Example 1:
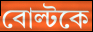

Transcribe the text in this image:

বোল্টকে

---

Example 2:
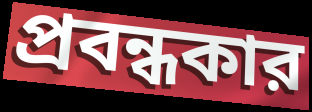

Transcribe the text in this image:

প্রবন্ধকার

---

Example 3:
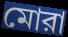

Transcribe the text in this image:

মোরা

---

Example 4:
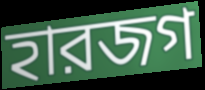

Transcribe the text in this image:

হারজগ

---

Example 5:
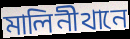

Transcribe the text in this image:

মালিনীথানে